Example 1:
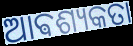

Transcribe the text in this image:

ଆଵଶ୍ୟକତା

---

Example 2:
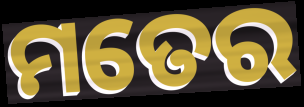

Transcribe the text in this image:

ମତେର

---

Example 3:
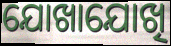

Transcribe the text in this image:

ଯୋଖାଯୋଖି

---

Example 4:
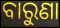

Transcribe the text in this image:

ବାରୁଣା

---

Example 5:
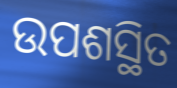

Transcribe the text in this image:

ଉପଶସ୍ଥିତ